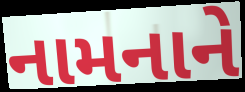
નામનાને